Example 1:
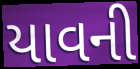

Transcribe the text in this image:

યાવની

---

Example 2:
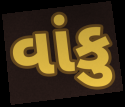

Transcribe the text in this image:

વાંકુ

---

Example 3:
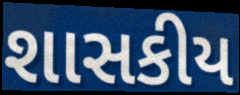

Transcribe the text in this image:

શાસકીય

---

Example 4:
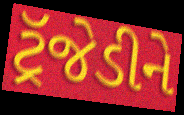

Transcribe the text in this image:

ટ્રૅજેડીને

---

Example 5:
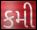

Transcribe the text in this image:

કમી